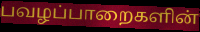
பவழப்பாறைகளின்